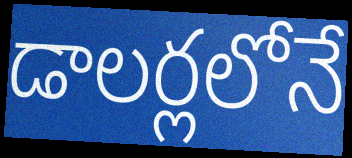
డాలర్లలోనే